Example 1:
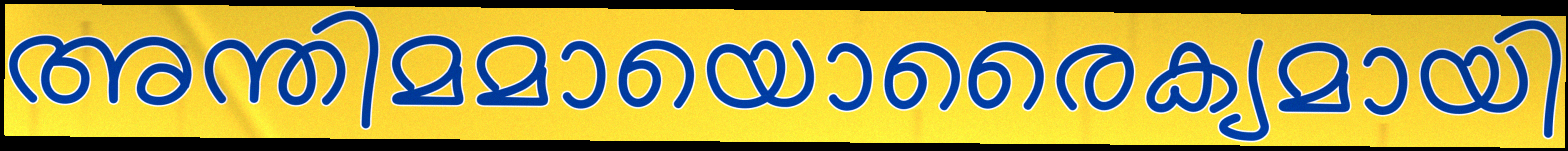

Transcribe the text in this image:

അന്തിമമായൊരൈക്യമായി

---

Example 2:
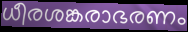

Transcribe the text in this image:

ധീരശങ്കരാഭരണം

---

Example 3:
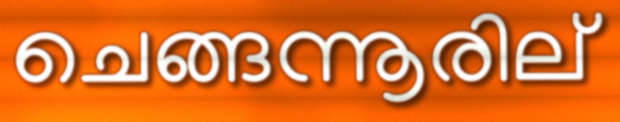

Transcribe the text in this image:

ചെങ്ങന്നൂരില്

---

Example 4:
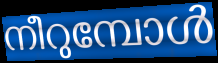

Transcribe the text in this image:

നീറുമ്പോൾ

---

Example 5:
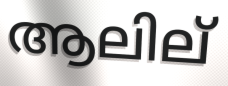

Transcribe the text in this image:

ആലില്